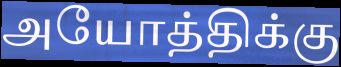
அயோத்திக்கு